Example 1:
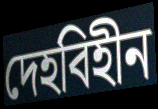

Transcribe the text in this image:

দেহবিহীন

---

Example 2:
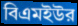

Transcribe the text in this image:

বিএমইউর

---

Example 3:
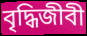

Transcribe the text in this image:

বৃদ্ধিজীবী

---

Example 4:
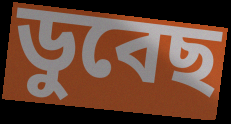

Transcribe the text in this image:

ডুবেছ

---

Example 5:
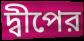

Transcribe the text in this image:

দ্বীপের